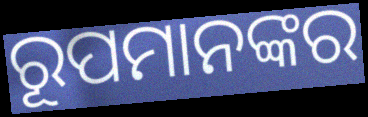
ରୂପମାନଙ୍କର